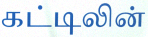
கட்டிலின்